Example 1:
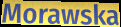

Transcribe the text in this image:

Morawska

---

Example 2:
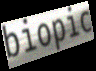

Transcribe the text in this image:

biopic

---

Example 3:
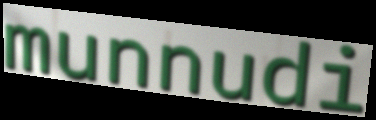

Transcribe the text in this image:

munnudi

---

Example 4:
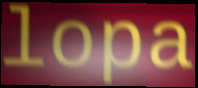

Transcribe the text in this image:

lopa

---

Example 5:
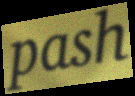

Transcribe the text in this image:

pash